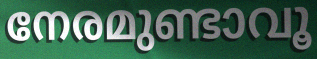
നേരമുണ്ടാവൂ